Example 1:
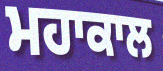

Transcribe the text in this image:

ਮਹਾਕਾਲ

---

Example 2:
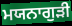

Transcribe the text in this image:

ਮਯਨਾਗੁੜੀ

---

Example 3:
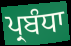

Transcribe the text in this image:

ਪ੍ਰਬੰਧਾ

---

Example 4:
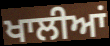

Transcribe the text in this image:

ਖਾਲੀਆਂ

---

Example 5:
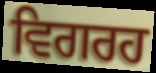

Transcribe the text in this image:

ਵਿਗਰਹ